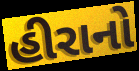
હીરાનો